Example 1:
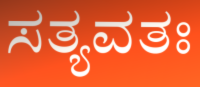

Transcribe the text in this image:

ಸತ್ಯವತಃ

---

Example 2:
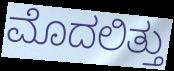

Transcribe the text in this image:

ಮೊದಲಿತ್ತು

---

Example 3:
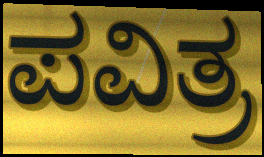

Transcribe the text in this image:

ಪವಿತ್ರ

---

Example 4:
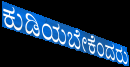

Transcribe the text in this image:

ಕುಡಿಯಬೇಕೆಂದರು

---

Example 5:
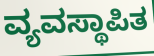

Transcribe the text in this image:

ವ್ಯವಸ್ಥಾಪಿತ